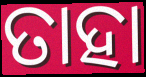
ତାହା